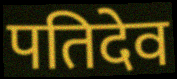
पतिदेव